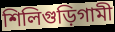
শিলিগুড়িগামী